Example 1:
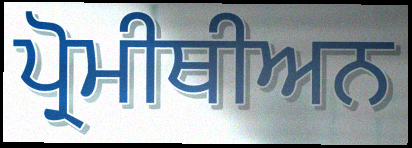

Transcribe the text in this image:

ਪ੍ਰੋਮੀਥੀਅਨ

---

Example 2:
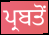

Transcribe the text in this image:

ਪ੍ਰਬਤੋਂ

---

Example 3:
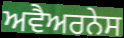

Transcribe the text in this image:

ਅਵੈਅਰਨੇਸ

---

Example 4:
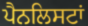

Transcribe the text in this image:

ਪੈਨਲਿਸਟਾਂ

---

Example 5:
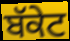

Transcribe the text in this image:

ਬੱਕੇਟ